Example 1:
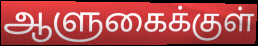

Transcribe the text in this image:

ஆளுகைக்குள்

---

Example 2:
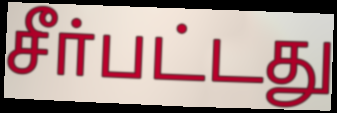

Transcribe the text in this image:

சீர்பட்டது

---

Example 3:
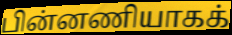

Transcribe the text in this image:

பின்னணியாகக்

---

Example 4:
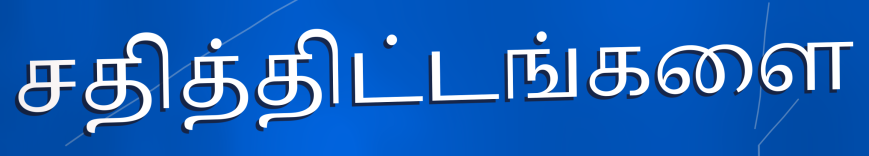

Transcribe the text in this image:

சதித்திட்டங்களை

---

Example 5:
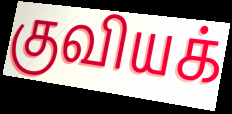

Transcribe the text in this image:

குவியக்